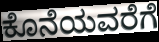
ಕೊನೆಯವರೆಗೆ